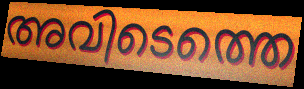
അവിടെത്തെ